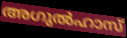
അഗുൽഹാസ്